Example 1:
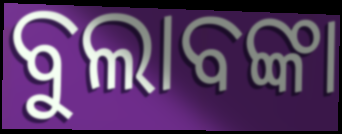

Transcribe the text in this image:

ବୁଲାବଙ୍କା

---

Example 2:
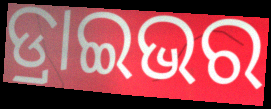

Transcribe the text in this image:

ଡ୍ରାଇଭର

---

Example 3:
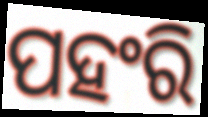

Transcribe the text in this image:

ପହଂରି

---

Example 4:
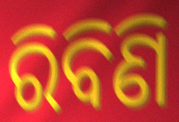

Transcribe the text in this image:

ରିବିଣି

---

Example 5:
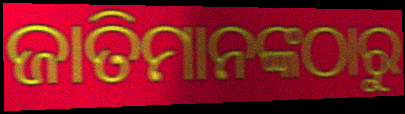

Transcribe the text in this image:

ଜାତିମାନଙ୍କଠାରୁ